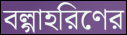
বল্গাহরিণের